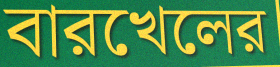
বারখেলের